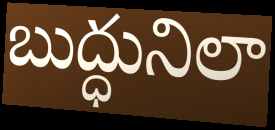
బుద్ధునిలా